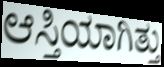
ಆಸ್ತಿಯಾಗಿತ್ತು